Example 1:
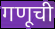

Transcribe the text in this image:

गणूची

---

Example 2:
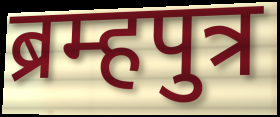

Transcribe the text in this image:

ब्रम्हपुत्र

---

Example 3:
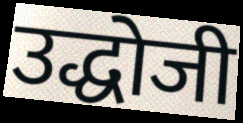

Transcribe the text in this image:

उद्धोजी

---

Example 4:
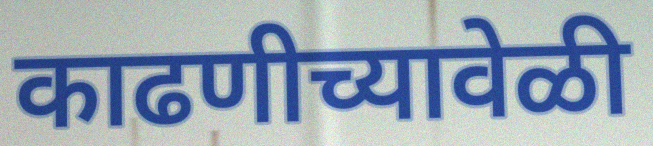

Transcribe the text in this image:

काढणीच्यावेळी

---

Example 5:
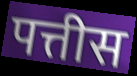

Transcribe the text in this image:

पत्तीस